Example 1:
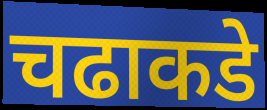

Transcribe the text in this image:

चढाकडे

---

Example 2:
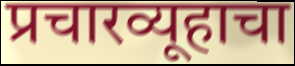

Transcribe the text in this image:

प्रचारव्यूहाचा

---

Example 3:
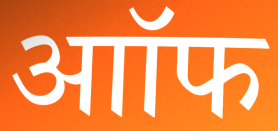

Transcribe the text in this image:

आॉफ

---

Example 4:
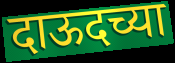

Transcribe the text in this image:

दाऊदच्या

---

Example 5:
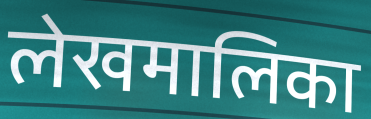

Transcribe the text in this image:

लेखमालिका